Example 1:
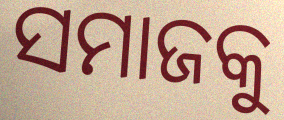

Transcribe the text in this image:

ସମାଜକୁ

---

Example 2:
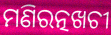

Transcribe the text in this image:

ମଣିରତ୍ନଖଚୀ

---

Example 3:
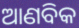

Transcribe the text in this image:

ଆଣବିକ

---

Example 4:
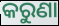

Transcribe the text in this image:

କରୁଣା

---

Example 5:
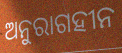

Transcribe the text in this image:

ଅନୁରାଗହୀନ